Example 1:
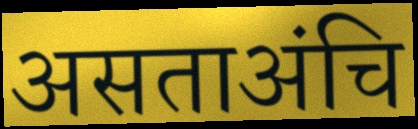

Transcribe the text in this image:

असताअंचि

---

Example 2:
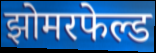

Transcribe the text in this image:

झोमरफेल्ड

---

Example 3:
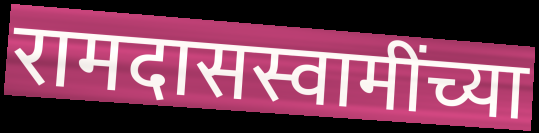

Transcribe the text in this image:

रामदासस्वामींच्या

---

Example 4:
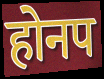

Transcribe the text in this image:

होनप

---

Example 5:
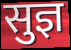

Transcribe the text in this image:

सुज्ञ